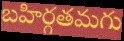
బహిర్గతమగు